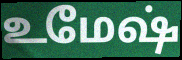
உமேஷ்